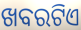
ଖବରଟିଏ